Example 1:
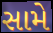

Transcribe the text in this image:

સામે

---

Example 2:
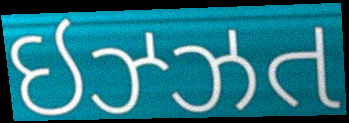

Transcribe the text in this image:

ઇઝ્ઝત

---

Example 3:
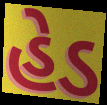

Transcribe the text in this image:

હેડ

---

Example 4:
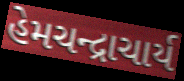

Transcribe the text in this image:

હેમચન્દ્રાચાર્ય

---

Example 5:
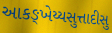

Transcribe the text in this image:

આકઙ્ખેય્યસુત્તાદીસુ